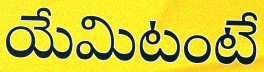
యేమిటంటే